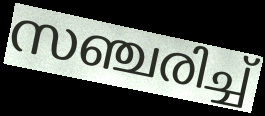
സഞ്ചരിച്ച്